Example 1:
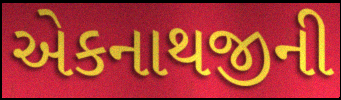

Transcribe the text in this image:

એકનાથજીની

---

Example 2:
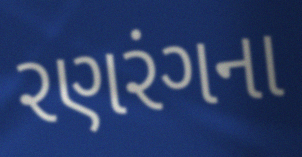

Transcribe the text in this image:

રણરંગના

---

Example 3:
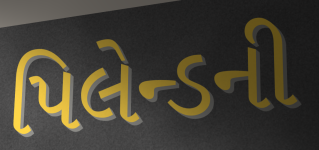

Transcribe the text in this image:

પિલેન્ડની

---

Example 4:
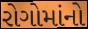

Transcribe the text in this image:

રોગોમાંનો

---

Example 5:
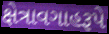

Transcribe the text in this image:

ક્ષેત્રાવગાહરૂપે